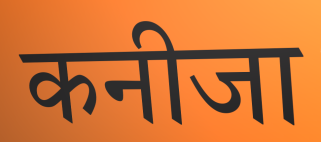
कनीजा